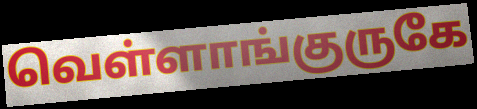
வெள்ளாங்குருகே